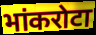
भांकरोटा